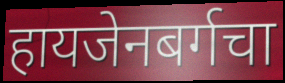
हायजेनबर्गचा